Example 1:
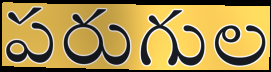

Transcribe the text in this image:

పరుగుల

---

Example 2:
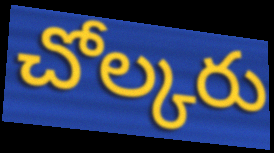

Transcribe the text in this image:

చోల్కరు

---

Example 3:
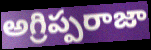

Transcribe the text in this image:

అగ్రిప్పరాజా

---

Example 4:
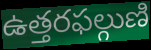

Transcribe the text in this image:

ఉత్తరఫల్గుణి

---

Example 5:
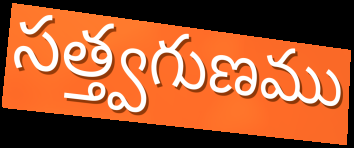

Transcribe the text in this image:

సత్త్వగుణము